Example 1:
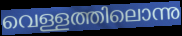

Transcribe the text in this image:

വെള്ളത്തിലൊന്നു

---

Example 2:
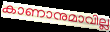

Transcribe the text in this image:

കാണാനുമാവില്ല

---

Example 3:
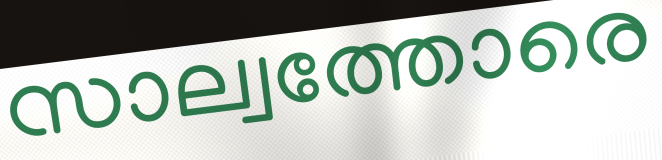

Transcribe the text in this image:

സാല്വത്തോരെ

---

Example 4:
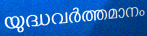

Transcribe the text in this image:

യുദ്ധവർത്തമാനം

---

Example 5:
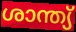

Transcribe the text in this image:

ശാന്ത്യ്